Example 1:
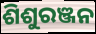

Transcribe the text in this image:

ଶିଶୁରଞ୍ଜନ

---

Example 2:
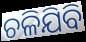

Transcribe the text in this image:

ଚଳିଯିବି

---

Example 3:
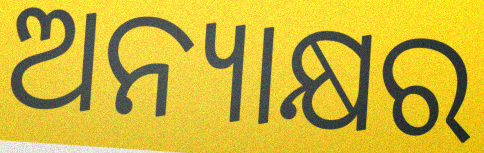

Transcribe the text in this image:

ଅନ୍ୟାକ୍ଷର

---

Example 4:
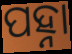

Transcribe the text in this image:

ପହ୍ନା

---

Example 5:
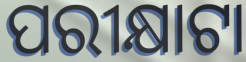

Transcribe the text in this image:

ପରୀକ୍ଷାଟା